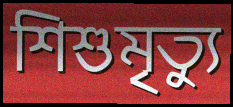
শিশুমৃত্যু